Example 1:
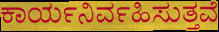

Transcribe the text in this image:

ಕಾರ್ಯನಿರ್ವಹಿಸುತ್ತವೆ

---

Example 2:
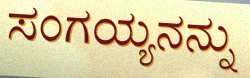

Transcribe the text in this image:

ಸಂಗಯ್ಯನನ್ನು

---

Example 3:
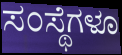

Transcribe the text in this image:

ಸಂಸ್ಥೆಗಳೂ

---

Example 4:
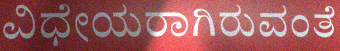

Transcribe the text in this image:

ವಿಧೇಯರಾಗಿರುವಂತೆ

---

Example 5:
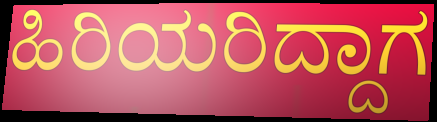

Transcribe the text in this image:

ಹಿರಿಯರಿದ್ದಾಗ